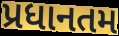
પ્રધાનતમ